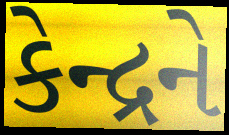
કેન્દ્રને